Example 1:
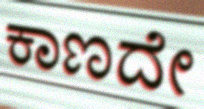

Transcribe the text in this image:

ಕಾಣದೇ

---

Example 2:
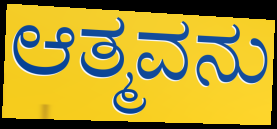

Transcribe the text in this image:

ಆತ್ಮವನು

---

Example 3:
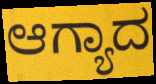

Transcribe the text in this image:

ಆಗ್ಯಾದ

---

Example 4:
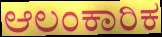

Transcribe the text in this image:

ಆಲಂಕಾರಿಕ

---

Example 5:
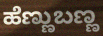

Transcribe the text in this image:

ಹೆಣ್ಣುಬಣ್ಣ